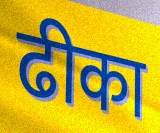
ढीका